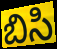
బిసి